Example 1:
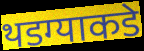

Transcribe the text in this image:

थडग्याकडे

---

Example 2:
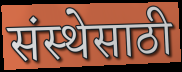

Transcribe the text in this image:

संस्थेसाठी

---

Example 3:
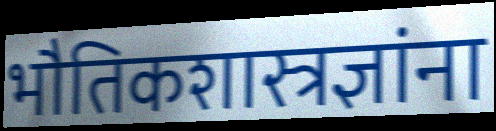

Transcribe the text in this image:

भौतिकशास्त्रज्ञांना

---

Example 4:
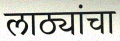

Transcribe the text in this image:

लाठ्यांचा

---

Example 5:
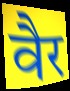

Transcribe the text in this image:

वैर